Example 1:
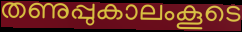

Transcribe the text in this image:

തണുപ്പുകാലംകൂടെ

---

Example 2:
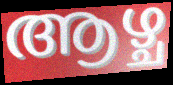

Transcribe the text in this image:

ആഴ്ച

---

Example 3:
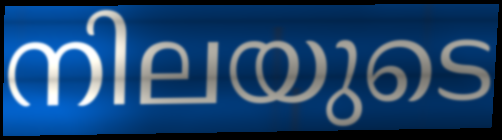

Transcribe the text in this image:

നിലയുടെ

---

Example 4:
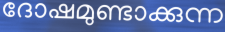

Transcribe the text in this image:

ദോഷമുണ്ടാക്കുന്ന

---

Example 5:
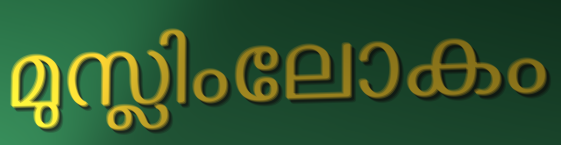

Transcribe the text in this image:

മുസ്ലിംലോകം